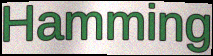
Hamming